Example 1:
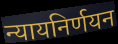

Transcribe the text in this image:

न्यायनिर्णयन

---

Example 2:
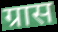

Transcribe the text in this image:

ग्रास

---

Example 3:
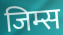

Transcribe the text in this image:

जिम्स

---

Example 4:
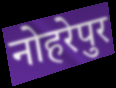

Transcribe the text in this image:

नोहरेपुर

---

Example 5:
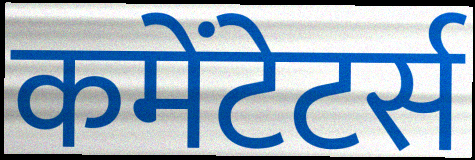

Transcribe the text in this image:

कमेंटेटर्स